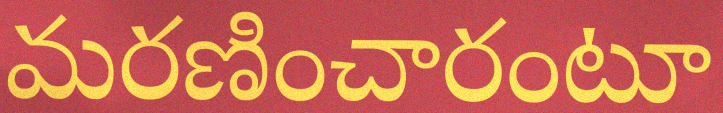
మరణించారంటూ